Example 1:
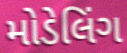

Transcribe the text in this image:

મોડેલિંગ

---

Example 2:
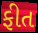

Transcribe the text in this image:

ફીત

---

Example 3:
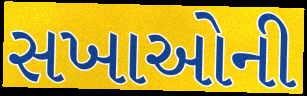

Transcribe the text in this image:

સખાઓની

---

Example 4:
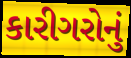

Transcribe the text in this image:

કારીગરોનું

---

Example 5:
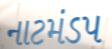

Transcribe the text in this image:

નાટમંડપ